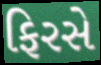
ફિરસે